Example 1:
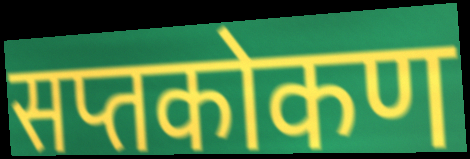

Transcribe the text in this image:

सप्तकोकण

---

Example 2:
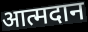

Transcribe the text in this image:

आत्मदान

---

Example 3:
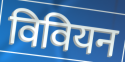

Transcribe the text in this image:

विवियन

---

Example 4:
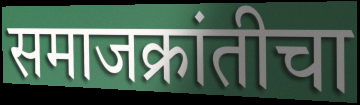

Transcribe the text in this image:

समाजक्रांतीचा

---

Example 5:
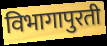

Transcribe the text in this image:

विभागापुरती